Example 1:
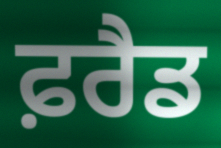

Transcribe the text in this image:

ਫ਼ਰੈਡ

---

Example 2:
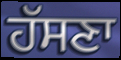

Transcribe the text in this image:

ਹੱਸਣਾ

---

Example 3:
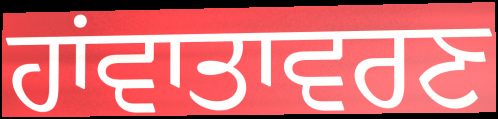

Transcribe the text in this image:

ਹਾਂਵਾਤਾਵਰਣ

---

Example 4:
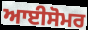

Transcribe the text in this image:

ਆਈਸੋਮਰ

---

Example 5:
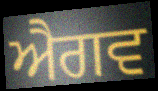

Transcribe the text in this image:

ਐਗਵ